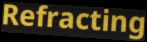
Refracting